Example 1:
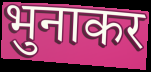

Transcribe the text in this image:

भुनाकर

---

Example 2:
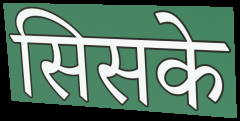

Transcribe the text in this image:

सिसके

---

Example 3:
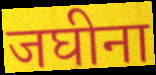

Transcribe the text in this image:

जघीना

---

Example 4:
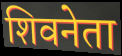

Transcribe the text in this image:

शिवनेता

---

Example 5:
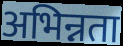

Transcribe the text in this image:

अभिन्नता